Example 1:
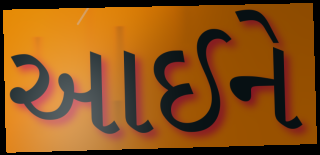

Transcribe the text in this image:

આઈને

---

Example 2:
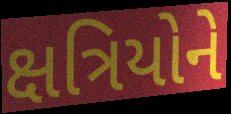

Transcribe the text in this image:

ક્ષત્રિયોને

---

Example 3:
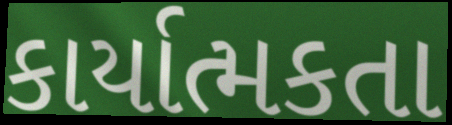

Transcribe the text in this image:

કાર્યાત્મકતા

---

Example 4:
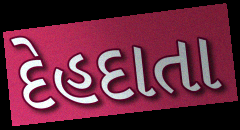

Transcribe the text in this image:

દેહદાતા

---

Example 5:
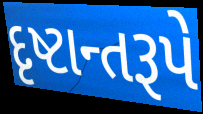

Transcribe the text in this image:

દૃષ્ટાન્તરૂપે